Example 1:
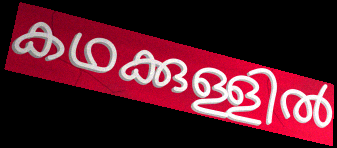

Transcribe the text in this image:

കഥക്കുള്ളിൽ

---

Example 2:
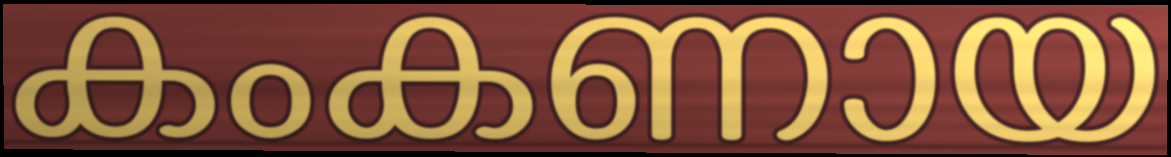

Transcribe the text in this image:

കംകണായ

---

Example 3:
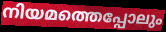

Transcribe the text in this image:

നിയമത്തെപ്പോലും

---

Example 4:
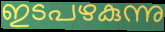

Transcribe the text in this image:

ഇടപഴകുന്നു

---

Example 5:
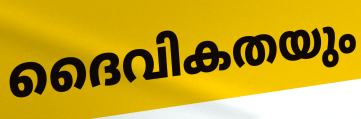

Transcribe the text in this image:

ദൈവികതയും